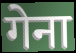
गेना